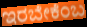
ಇರಬೇಕೆಂಬ